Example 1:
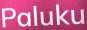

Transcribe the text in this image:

Paluku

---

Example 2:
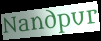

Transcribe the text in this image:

Nandpur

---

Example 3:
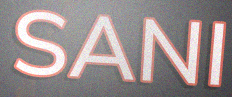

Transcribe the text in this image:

SANI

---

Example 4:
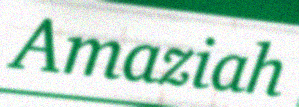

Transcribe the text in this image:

Amaziah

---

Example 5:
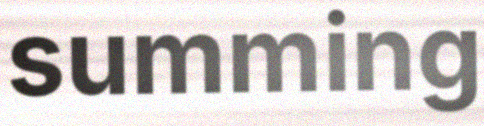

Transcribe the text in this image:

summing